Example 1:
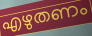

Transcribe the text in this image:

എഴുതണം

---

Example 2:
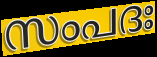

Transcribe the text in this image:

സംപദഃ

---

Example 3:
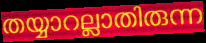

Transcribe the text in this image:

തയ്യാറല്ലാതിരുന്ന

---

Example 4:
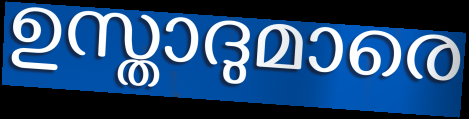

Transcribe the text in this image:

ഉസ്താദുമാരെ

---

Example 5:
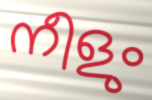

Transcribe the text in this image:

നീളും